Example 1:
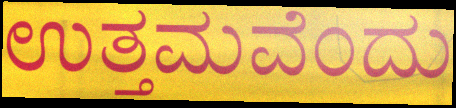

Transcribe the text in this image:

ಉತ್ತಮವೆಂದು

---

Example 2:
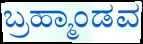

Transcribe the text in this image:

ಬ್ರಹ್ಮಾಂಡವ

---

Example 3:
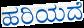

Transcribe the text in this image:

ಹರಿಯದೆ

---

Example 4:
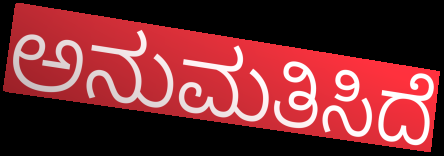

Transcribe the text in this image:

ಅನುಮತಿಸಿದೆ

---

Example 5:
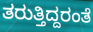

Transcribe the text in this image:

ತರುತ್ತಿದ್ದರಂತೆ